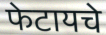
फेटायचे